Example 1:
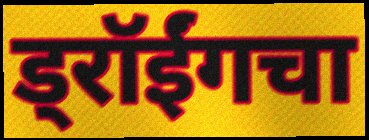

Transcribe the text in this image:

ड्रॉईंगचा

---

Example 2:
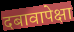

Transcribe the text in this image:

दबावापेक्षा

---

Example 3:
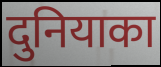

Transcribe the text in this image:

दुनियाका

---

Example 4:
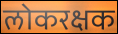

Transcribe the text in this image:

लोकरक्षक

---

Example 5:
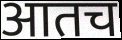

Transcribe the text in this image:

आतच